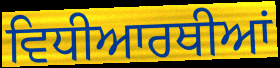
ਵਿਧੀਆਰਥੀਆਂ